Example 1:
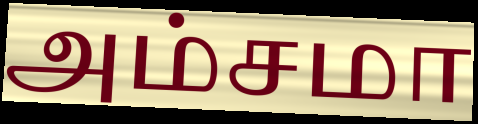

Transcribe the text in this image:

அம்சமா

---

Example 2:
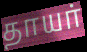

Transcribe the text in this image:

தாயர்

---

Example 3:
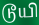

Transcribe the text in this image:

டூயி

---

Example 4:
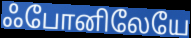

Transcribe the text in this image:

ஃபோனிலேயே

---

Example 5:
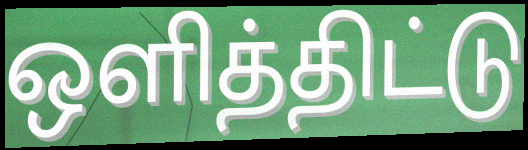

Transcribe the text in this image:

ஒளித்திட்டு